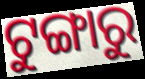
ଟୁଙ୍ଗାରୁ